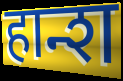
हान्श